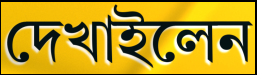
দেখাইলেন